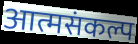
आत्मसंकल्प